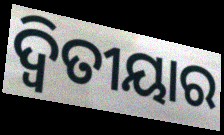
ଦ୍ଵିତୀୟାର